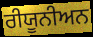
ਰੀਯੂਨੀਅਨ